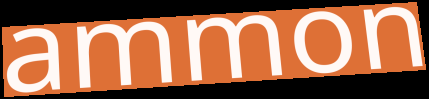
ammon